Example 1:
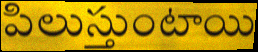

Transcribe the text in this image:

పిలుస్తుంటాయి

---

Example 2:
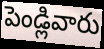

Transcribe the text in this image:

పెండ్లివారు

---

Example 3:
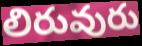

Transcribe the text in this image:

లిరువురు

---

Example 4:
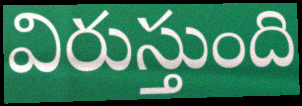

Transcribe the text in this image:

విరుస్తుంది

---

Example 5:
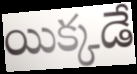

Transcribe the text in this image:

యిక్కడే